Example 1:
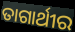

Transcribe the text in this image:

ତାଗାର୍ଥୀର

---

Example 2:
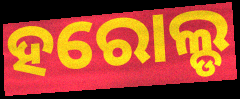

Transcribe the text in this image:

ହରୋଲ୍ଡ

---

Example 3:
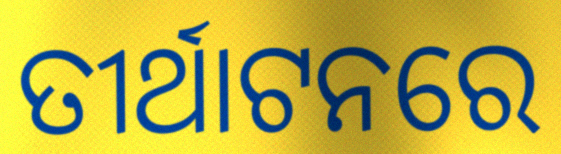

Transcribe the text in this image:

ତୀର୍ଥାଟନରେ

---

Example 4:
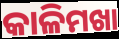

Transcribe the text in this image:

କାଳିମଖା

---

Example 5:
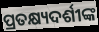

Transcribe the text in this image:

ପ୍ରତକ୍ଷ୍ୟଦର୍ଶୀଙ୍କ